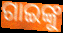
ଗାଇଙ୍କୁ